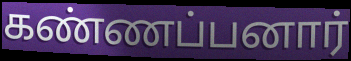
கண்ணப்பனார்